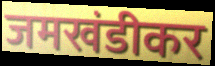
जमखंडीकर